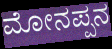
ಮೋನಪ್ಪನ